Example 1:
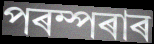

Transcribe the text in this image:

পৰম্পৰাৰ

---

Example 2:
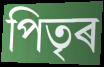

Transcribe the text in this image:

পিতৃৰ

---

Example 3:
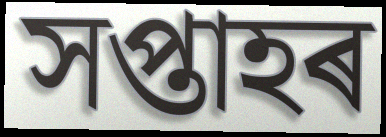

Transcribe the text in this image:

সপ্তাহৰ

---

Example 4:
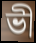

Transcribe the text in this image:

ভী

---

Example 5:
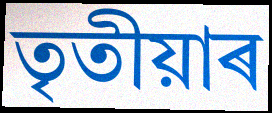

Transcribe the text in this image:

তৃতীয়াৰ